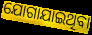
ଯୋଗାଯାଇଥିବା